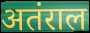
अतंराल